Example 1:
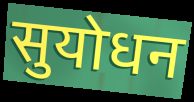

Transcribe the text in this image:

सुयोधन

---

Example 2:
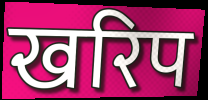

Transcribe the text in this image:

खरिप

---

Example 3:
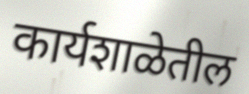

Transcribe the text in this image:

कार्यशाळेतील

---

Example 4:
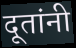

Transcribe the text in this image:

दूतांनी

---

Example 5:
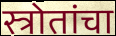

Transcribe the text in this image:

स्त्रोतांचा